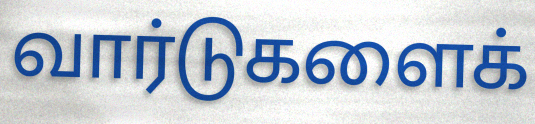
வார்டுகளைக்